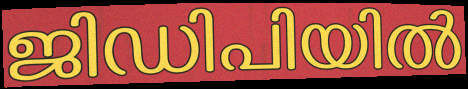
ജിഡിപിയിൽ